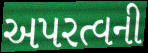
અપરત્વની